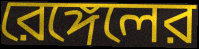
রেঙ্গেলের